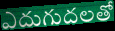
ఎదుగుదలతో